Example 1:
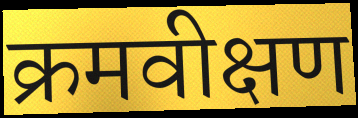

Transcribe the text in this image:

क्रमवीक्षण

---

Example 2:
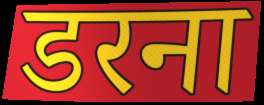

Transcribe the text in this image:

डरना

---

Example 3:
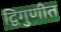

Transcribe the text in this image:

द्विगुणीत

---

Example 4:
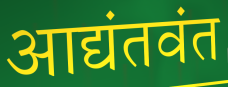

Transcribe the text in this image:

आद्यंतवंत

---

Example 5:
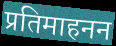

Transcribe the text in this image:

प्रतिमाहनन